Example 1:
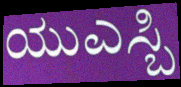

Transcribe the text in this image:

ಯುಎಸ್ಬಿ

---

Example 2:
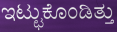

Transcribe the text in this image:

ಇಟ್ಟುಕೊಂಡಿತ್ತು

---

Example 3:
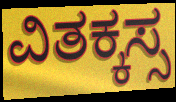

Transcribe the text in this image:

ವಿತಕ್ಕಸ್ಸ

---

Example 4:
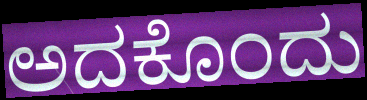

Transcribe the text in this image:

ಅದಕೊಂದು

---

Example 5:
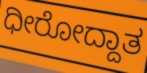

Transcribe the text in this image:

ಧೀರೋದ್ದಾತ